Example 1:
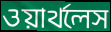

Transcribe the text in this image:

ওয়ার্থলেস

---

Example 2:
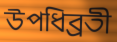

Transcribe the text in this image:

উপধিব্রতী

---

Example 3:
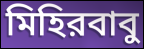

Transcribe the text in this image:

মিহিরবাবু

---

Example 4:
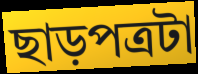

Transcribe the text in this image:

ছাড়পত্রটা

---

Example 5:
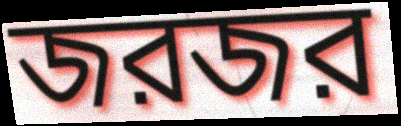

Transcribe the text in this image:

জরজর